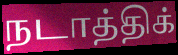
நடாத்திக்